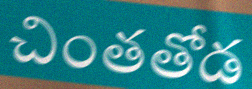
చింతతోడ